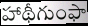
హాథీగుంఫా